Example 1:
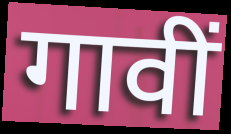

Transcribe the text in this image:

गावीं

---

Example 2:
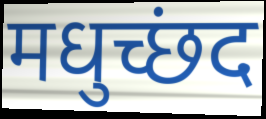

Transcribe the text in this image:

मधुच्छंद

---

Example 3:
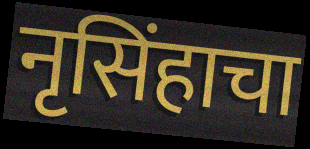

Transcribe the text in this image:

नृसिंहाचा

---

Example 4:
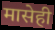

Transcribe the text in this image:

मासेही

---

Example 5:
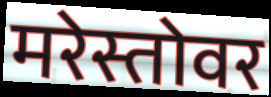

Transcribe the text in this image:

मरेस्तोवर